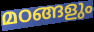
മഠങ്ങളും